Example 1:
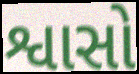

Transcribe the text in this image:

શ્વાસો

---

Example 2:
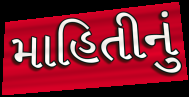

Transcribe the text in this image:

માહિતીનું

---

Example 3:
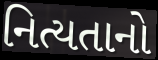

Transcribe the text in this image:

નિત્યતાનો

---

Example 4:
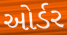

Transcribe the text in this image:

ઓર્ડર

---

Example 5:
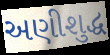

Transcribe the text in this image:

અણીશુદ્ધ